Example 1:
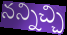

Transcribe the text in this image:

నన్నిచ్చి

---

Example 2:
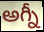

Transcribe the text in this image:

అగ్నీ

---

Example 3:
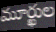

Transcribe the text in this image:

మూర్ఖుల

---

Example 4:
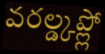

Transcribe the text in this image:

వరల్డ్కప్ల్లో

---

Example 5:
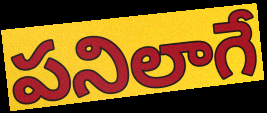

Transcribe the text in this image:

పనిలాగే